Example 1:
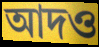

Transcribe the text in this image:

আদও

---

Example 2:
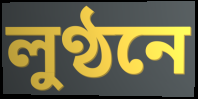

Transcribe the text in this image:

লুণ্ঠনে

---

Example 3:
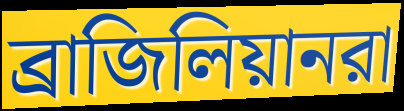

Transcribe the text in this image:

ব্রাজিলিয়ানরা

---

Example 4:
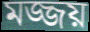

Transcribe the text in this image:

মজ্জয়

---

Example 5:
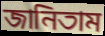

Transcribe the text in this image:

জানিতাম